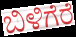
ಬಿಳಿಗೆರೆ